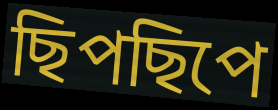
ছিপছিপে